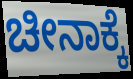
ಚೀನಾಕ್ಕೆ